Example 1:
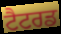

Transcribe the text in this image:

ਟੈਟਰਡ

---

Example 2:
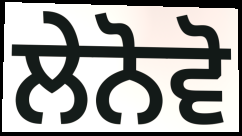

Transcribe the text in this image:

ਲੇਨੋਵੋ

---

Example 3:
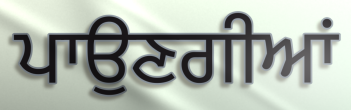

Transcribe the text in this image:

ਪਾਉਣਗੀਆਂ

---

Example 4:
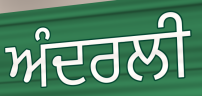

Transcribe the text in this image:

ਅੰਦਰਲੀ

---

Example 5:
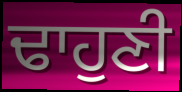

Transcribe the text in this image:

ਢਾਹੁਣੀ